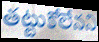
తట్టుకోలేనని